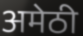
अमेठी